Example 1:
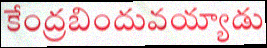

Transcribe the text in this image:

కేంద్రబిందువయ్యాడు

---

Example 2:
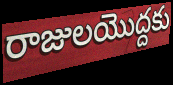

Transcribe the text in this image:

రాజులయొద్దకు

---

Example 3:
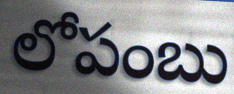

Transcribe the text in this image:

లోపంబు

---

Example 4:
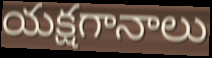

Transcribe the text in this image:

యక్షగానాలు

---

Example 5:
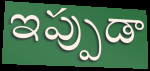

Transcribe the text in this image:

ఇప్పుడా